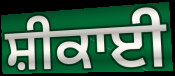
ਸ਼ੀਕਾਈ